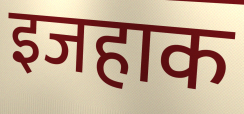
इजहाक